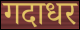
गदाधर